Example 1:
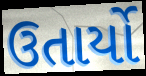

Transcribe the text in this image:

ઉતાર્યો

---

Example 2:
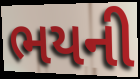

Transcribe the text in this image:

ભયની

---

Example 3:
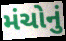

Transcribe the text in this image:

મંચોનું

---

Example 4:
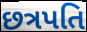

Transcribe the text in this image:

છત્રપતિ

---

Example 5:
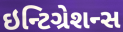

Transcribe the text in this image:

ઇન્ટિગ્રેશન્સ